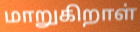
மாறுகிறாள்